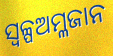
ସ୍ୱଳ୍ପଅମ୍ଳଜାନ